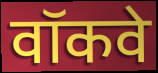
वॉकवे